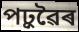
পঢ়ুৱৈৰ